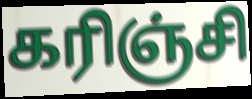
கரிஞ்சி